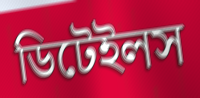
ডিটেইলস